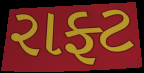
રાફ્ટ